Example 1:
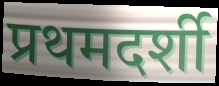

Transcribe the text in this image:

प्रथमदर्शी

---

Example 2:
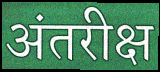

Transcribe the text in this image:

अंतरीक्ष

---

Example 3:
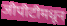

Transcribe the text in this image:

जीपीटीमधून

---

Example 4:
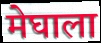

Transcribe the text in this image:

मेघाला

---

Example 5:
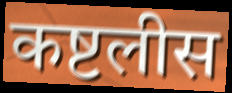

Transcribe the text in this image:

कष्टलीस